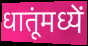
धातूंमध्यें